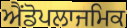
ਐਂਡੋਪਲਾਜਮਿਕ